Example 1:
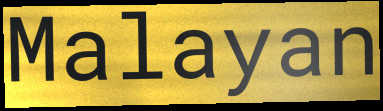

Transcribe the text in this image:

Malayan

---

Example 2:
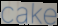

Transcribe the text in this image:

cake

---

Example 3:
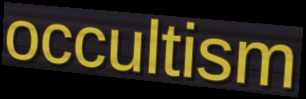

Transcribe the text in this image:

occultism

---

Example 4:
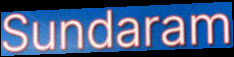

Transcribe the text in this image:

Sundaram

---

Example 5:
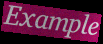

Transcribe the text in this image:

Example